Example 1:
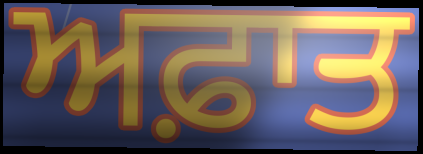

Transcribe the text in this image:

ਅਫ਼ਾਤ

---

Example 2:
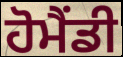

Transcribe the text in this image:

ਹੋਮੈਂਡੀ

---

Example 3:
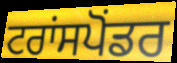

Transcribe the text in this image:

ਟਰਾਂਸਪੋਂਡਰ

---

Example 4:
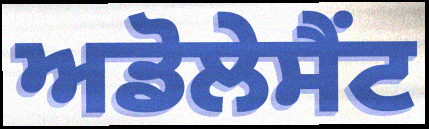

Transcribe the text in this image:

ਅਡੋਲੇਸੈਂਟ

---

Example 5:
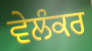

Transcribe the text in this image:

ਵੇਲੰਕਰ